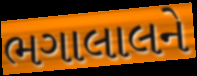
ભગાલાલને